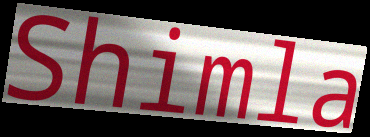
Shimla